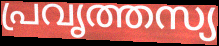
പ്രവൃത്തസ്യ